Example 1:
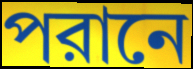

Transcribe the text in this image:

পরানে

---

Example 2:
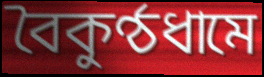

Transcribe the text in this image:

বৈকুণ্ঠধামে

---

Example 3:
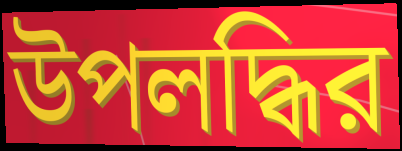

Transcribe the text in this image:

উপলদ্ধির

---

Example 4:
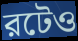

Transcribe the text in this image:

রটেও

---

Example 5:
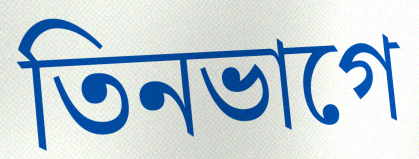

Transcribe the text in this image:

তিনভাগে